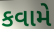
કવામે